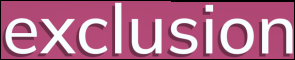
exclusion